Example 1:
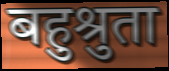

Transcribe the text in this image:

बहुश्रुता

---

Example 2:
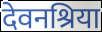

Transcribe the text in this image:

देवनश्रिया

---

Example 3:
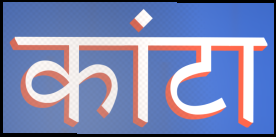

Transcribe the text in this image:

कांटा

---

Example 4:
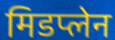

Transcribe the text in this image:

मिडप्लेन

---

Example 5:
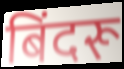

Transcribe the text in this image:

बिंदरू